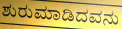
ಶುರುಮಾಡಿದವನು